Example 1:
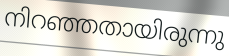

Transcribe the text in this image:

നിറഞ്ഞതായിരുന്നു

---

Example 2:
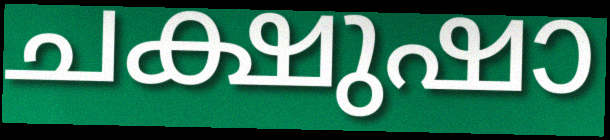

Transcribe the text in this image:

ചക്ഷുഷാ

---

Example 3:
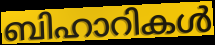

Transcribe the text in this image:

ബിഹാറികൾ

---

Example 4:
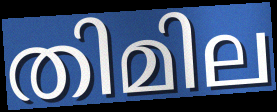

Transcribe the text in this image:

തിമില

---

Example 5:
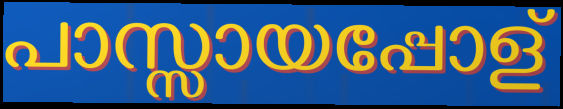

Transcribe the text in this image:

പാസ്സായപ്പോള്